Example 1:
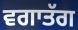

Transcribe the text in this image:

ਵਗਾਤੱਗ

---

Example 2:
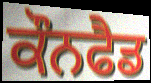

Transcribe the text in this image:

ਕੌਨਫੈਡ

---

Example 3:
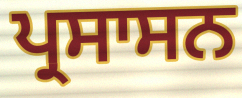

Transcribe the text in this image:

ਪ੍ਰਸਾਸਨ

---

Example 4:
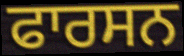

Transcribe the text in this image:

ਫਾਰਸਨ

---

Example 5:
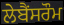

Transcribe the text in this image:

ਲੇਬੈਂਸਰੌਮ